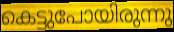
കെട്ടുപോയിരുന്നു